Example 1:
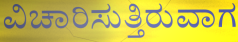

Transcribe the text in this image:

ವಿಚಾರಿಸುತ್ತಿರುವಾಗ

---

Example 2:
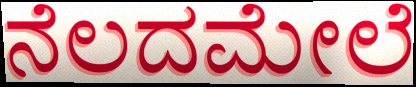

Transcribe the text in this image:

ನೆಲದಮೇಲೆ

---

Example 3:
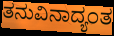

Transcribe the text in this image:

ತನುವಿನಾದ್ಯಂತ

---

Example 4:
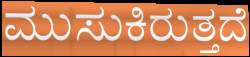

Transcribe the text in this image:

ಮುಸುಕಿರುತ್ತದೆ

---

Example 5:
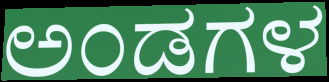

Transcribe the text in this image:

ಅಂಡಗಳ